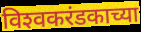
विश्‍वकरंडकाच्या